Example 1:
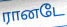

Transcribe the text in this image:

ரானடே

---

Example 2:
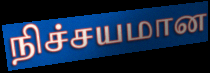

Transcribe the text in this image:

நிச்சயமான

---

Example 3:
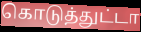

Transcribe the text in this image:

கொடுத்துட்டா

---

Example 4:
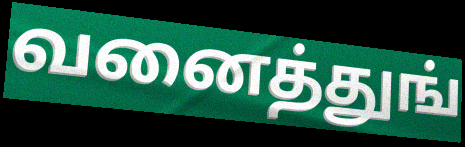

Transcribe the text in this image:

வனைத்துங்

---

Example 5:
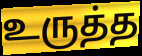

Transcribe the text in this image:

உருத்த